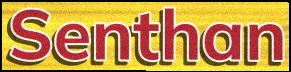
Senthan